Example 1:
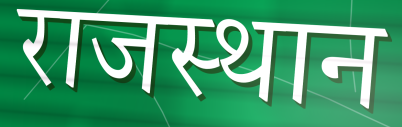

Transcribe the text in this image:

राजस्थान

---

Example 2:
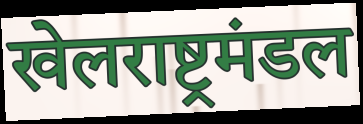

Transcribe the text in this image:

खेलराष्ट्रमंडल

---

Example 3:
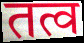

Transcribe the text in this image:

तत्व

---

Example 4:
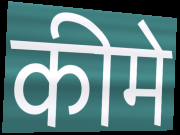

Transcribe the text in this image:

कीमे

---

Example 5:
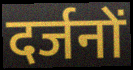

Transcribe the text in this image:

दर्जनों